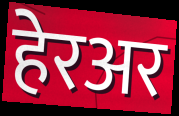
हेरअर